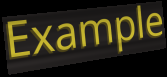
Example